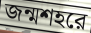
জন্মশহরে